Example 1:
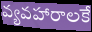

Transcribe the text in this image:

వ్యవహారాలకే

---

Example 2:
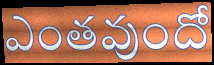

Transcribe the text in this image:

ఎంతవుందో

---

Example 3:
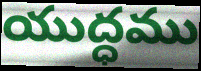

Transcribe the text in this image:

యుద్ధము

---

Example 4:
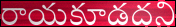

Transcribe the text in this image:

రాయకూడదని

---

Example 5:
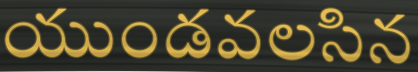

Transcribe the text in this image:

యుండవలసిన